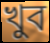
খুব